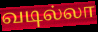
வடில்லா